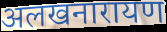
अलखनारायण